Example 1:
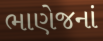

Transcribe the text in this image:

ભાણેજનાં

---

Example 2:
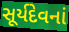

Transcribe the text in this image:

સૂર્યદેવનાં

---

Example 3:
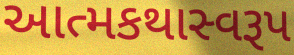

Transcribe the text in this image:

આત્મકથાસ્વરૂપ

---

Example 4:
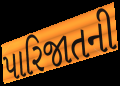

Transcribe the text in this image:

પારિજાતની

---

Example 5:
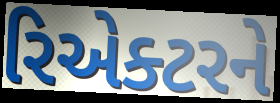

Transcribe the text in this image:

રિએક્ટરને